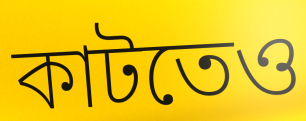
কাটতেও